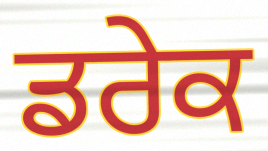
ਡਰੇਕ